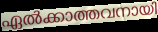
ഏൽക്കാത്തവനായി